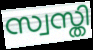
സ്വസ്തി